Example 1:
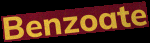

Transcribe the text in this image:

Benzoate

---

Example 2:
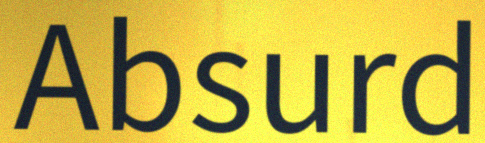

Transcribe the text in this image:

Absurd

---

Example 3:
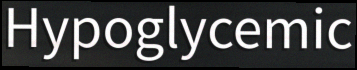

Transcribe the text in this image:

Hypoglycemic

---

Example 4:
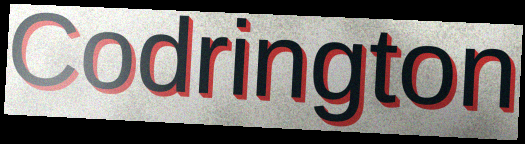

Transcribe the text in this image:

Codrington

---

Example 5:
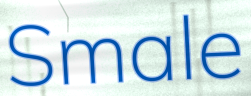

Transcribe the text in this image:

Smale